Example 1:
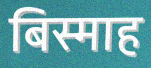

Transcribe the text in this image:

बिस्माह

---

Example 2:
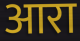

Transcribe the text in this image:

आरा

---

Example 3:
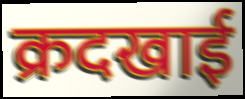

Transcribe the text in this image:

क्रदखाई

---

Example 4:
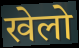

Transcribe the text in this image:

खेलो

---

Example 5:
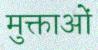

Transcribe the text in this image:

मुक्ताओं